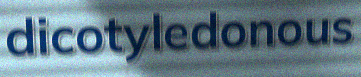
dicotyledonous